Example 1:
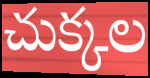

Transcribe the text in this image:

చుక్కల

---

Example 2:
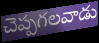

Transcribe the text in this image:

చెప్పగలవాడు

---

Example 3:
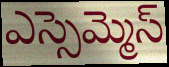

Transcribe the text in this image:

ఎస్సెమ్మెస్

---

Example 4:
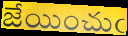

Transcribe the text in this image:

జేయించుఁ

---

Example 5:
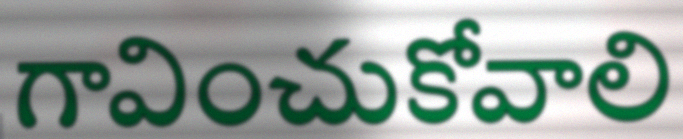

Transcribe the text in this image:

గావించుకోవాలి